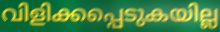
വിളിക്കപ്പെടുകയില്ല